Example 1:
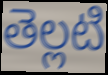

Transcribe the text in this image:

తెల్లటి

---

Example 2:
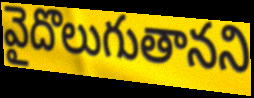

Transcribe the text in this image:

వైదొలుగుతానని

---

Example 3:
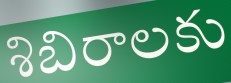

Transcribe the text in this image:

శిబిరాలకు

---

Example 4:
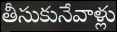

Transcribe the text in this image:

తీసుకునేవాళ్లు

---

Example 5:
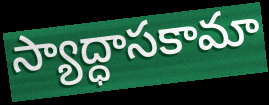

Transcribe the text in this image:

స్యాద్ధాసకామా